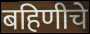
बहिणीचे